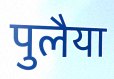
पुलैया